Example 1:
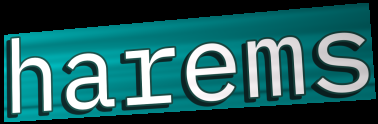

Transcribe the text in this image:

harems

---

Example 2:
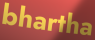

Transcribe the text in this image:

bhartha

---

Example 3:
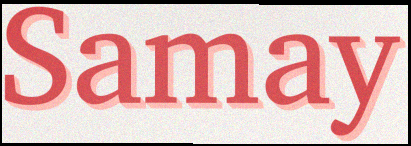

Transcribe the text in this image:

Samay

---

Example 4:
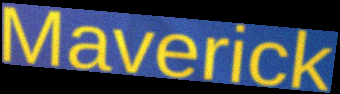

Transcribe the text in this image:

Maverick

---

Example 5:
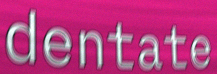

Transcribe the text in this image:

dentate